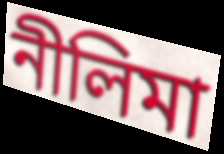
নীলিমা